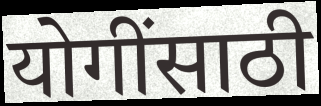
योगींसाठी